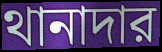
থানাদার